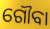
ଗୌବା